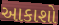
આકાશો